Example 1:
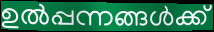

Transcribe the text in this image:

ഉൽപ്പന്നങ്ങൾക്ക്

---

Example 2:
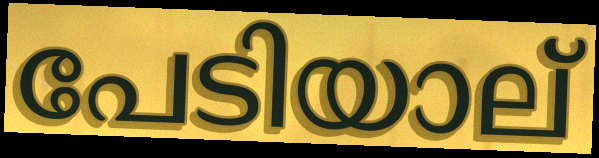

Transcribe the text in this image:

പേടിയാല്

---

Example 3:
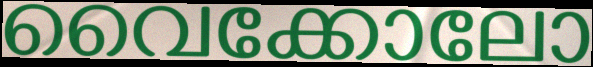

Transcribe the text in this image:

വൈക്കോലോ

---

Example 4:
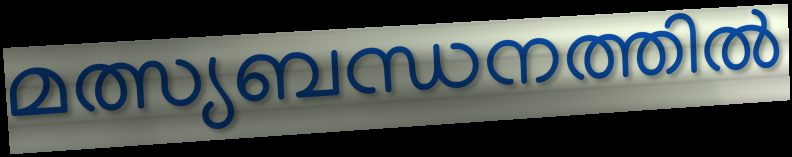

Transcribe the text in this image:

മത്സ്യബന്ധനത്തിൽ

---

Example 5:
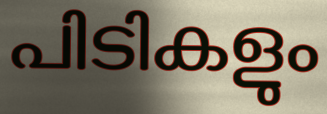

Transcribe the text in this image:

പിടികളും